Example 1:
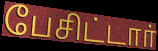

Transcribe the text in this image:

பேசிட்டார்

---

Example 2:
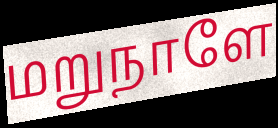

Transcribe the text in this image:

மறுநாளே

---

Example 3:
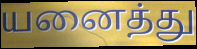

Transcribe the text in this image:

யனைத்து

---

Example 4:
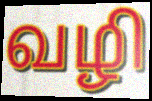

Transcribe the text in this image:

வழி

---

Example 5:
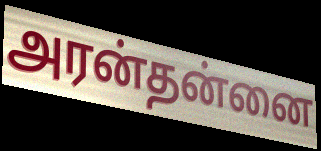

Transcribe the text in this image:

அரன்தன்னை